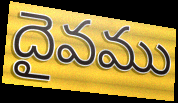
దైవము